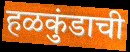
हळकुंडाची